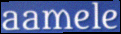
aamele